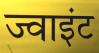
ज्वाइंट